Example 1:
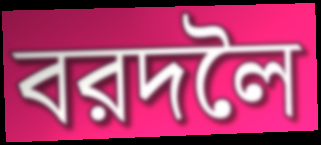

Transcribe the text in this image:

বরদলৈ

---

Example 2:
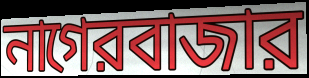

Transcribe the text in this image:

নাগেরবাজার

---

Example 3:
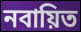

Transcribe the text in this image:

নবায়িত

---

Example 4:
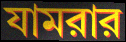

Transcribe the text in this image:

যামরার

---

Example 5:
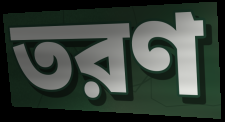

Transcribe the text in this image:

তরণ